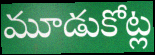
మూడుకోట్ల